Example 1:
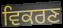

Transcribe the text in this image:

ਵਿਕਰਣ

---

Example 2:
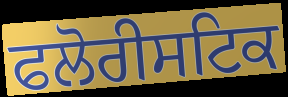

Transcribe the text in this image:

ਫਲੋਰੀਸਟਿਕ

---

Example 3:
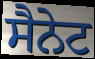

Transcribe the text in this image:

ਸੈਨੇਟ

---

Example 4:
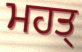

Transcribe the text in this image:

ਮਹਤ੍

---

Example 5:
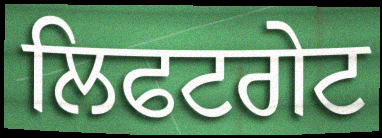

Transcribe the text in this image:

ਲਿਫਟਗੇਟ